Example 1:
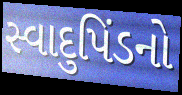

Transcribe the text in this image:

સ્વાદુપિંડનો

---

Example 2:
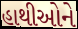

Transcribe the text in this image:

હાથીઓને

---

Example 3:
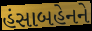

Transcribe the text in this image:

હંસાબહેનને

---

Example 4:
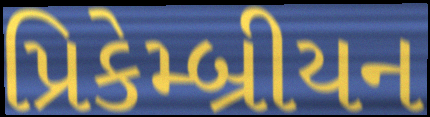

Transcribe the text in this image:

પ્રિકેમ્બ્રીયન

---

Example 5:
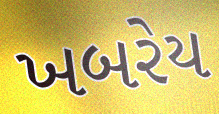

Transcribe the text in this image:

ખબરેય